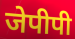
जेपीपी